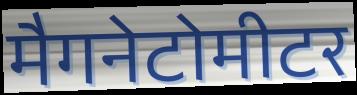
मैगनेटोमीटर